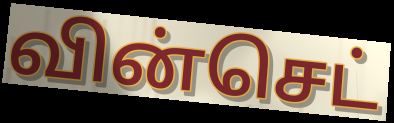
வின்செட்